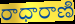
రాధారాణి